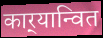
कार्यान्वित